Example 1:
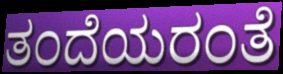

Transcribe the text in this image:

ತಂದೆಯರಂತೆ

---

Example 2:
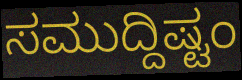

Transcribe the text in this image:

ಸಮುದ್ದಿಷ್ಟಂ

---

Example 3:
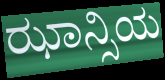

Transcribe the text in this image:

ಝಾನ್ಸಿಯ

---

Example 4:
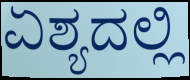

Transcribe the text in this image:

ಏಶ್ಯದಲ್ಲಿ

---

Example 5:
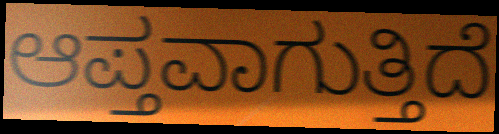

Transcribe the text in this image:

ಆಪ್ತವಾಗುತ್ತಿದೆ